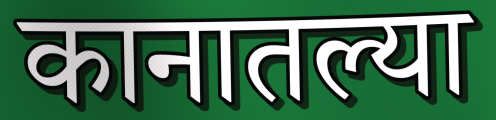
कानातल्या